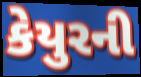
કેયુરની